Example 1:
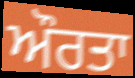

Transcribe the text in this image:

ਔਰਤਾ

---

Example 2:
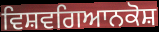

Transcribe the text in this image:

ਵਿਸ਼ਵਗਿਆਨਕੋਸ਼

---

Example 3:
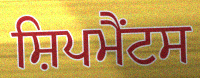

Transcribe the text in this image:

ਸ਼ਿਪਮੈਂਟਸ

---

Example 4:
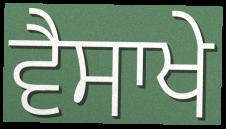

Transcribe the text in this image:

ਵੈਸਾਖੇ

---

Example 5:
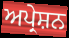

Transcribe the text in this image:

ਅਪ੍ਰੇਸ਼ਨ